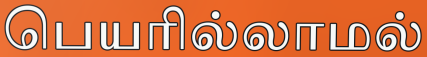
பெயரில்லாமல்